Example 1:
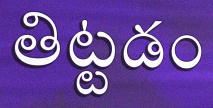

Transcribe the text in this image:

తిట్టడం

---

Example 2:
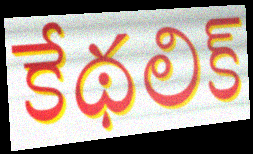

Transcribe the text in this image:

కేథలిక్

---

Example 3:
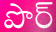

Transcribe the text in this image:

పొర్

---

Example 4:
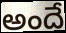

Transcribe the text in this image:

అందే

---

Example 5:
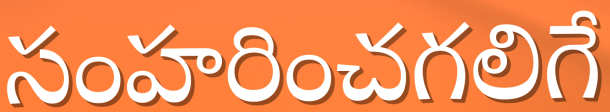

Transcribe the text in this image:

సంహరించగలిగే